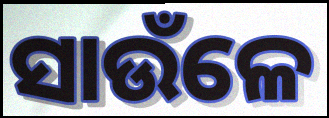
ସାଉଁଳେ